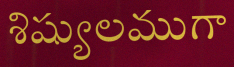
శిష్యులముగా